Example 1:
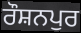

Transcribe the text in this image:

ਰੌਸ਼ਨਪੁਰ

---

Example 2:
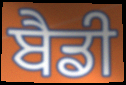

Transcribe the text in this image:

ਬੈਡੀ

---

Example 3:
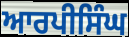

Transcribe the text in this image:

ਆਰਪੀਸਿੰਘ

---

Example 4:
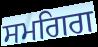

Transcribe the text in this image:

ਸਮਗਿਗ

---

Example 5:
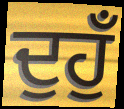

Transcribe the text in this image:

ਦੁਹੁਁ